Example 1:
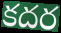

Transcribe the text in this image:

కదర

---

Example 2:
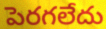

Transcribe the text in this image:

పెరగలేదు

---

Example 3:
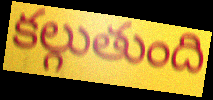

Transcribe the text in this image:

కల్గుతుంది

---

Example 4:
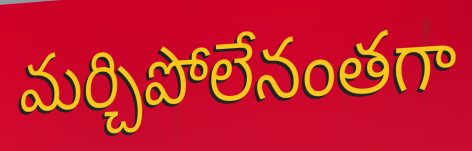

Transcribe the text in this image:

మర్చిపోలేనంతగా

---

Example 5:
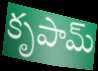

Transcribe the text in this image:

కృపామ్